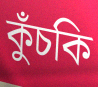
কুঁচকি